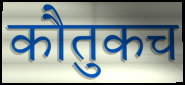
कौतुकच